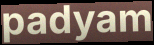
padyam